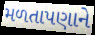
મળતાપણાને